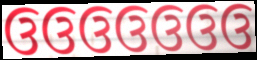
ઉઉઉઉઉઉઉ